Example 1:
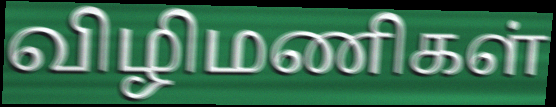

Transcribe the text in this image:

விழிமணிகள்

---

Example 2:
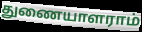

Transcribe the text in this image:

துணையாளராம்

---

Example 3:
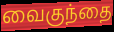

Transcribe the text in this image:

வைகுந்தை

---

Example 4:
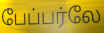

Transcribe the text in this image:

பேப்பர்லே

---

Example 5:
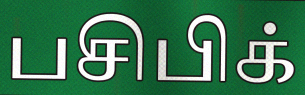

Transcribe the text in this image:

பசிபிக்